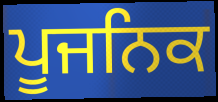
ਪੂਜਨਿਕ